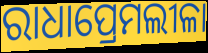
ରାଧାପ୍ରେମଲୀଳା